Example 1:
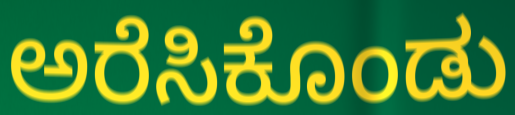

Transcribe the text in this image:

ಅರೆಸಿಕೊಂಡು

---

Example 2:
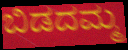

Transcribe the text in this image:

ಬಿಡದಮ್ಮ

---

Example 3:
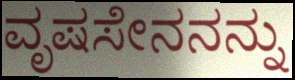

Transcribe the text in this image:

ವೃಷಸೇನನನ್ನು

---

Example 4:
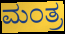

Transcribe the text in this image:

ಮಂತ್ರ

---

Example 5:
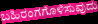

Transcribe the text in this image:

ಬಹಿರಂಗಗೊಳಿಸುವುದು